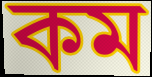
কম